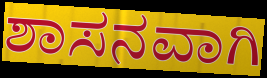
ಶಾಸನವಾಗಿ